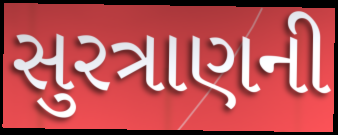
સુરત્રાણની